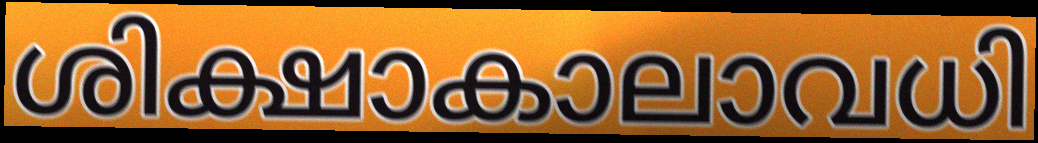
ശിക്ഷാകാലാവധി